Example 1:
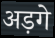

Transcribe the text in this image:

अड़गे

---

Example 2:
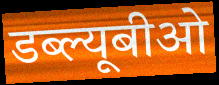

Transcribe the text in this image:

डब्ल्यूबीओ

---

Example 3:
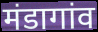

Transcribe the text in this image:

मंडागांव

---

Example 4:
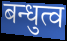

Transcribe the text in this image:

बन्धुत्व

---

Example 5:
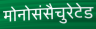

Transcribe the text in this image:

मोनोसंसैचुरेटेड